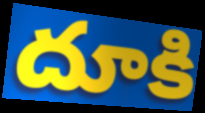
దూకి